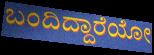
ಬಂದಿದ್ದಾರೆಯೋ